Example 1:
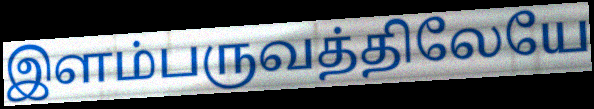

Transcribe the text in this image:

இளம்பருவத்திலேயே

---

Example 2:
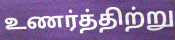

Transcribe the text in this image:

உணர்த்திற்று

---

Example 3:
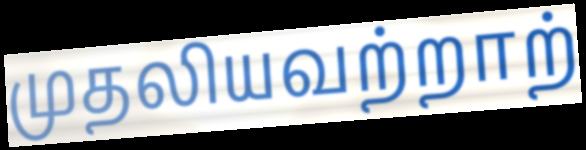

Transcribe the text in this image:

முதலியவற்றாற்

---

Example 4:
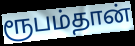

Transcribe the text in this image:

ரூபம்தான்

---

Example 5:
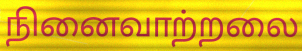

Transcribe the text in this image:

நினைவாற்றலை